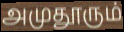
அமுதூரும்